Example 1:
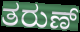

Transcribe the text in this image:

ತರುಣ್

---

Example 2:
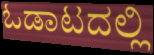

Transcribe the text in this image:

ಓಡಾಟದಲ್ಲಿ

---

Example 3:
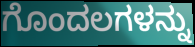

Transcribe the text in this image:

ಗೊಂದಲಗಳನ್ನು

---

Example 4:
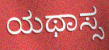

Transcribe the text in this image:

ಯಥಾಸ್ಸ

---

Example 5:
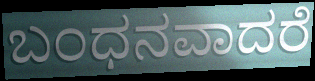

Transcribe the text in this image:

ಬಂಧನವಾದರೆ